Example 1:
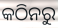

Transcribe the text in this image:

କଠିନରୁ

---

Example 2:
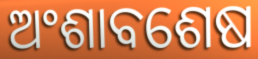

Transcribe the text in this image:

ଅଂଶାବଶେଷ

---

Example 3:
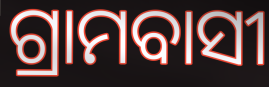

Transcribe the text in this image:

ଗ୍ରାମବାସୀ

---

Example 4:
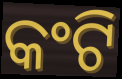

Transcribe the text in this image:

କଂଟି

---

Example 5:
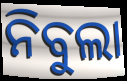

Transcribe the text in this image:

ନିବୁଲା